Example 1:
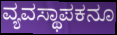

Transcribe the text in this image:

ವ್ಯವಸ್ಥಾಪಕನೂ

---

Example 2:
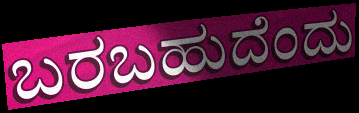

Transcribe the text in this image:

ಬರಬಹುದೆಂದು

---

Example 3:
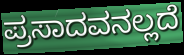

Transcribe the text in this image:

ಪ್ರಸಾದವನಲ್ಲದೆ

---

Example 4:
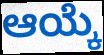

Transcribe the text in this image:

ಆಯ್ಕೆ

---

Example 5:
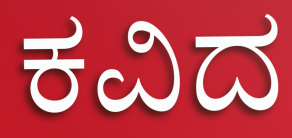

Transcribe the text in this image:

ಕವಿದ